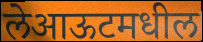
लेआऊटमधील